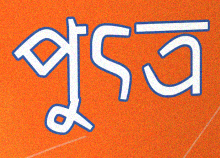
পুৎত্র